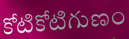
కోటికోటిగుణం